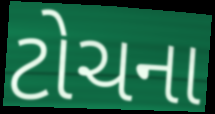
ટોચના